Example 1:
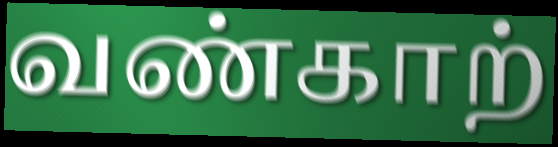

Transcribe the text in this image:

வண்காற்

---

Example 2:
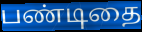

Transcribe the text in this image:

பண்டிதை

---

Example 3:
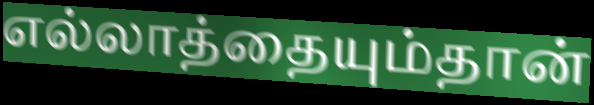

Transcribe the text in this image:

எல்லாத்தையும்தான்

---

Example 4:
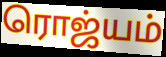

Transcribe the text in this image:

ரொஜ்யம்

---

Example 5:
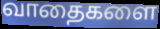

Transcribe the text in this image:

வாதைகளை